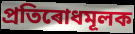
প্ৰতিৰোধমূলক